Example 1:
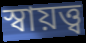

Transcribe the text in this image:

স্বায়ত্ত্ব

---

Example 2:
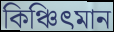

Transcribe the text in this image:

কিঞ্চিৎমান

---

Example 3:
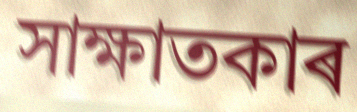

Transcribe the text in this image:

সাক্ষাতকাৰ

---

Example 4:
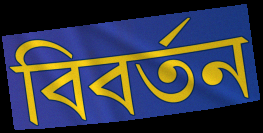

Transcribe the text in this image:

বিবৰ্তন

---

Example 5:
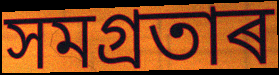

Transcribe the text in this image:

সমগ্ৰতাৰ